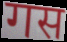
गस